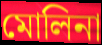
মোলিনা